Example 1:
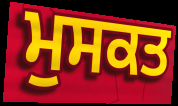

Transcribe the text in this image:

ਮੁਸਕਤ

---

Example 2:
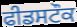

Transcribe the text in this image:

ਫੀਡਸਟੌਕ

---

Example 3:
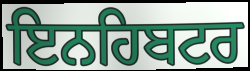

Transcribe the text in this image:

ਇਨਹਿਬਟਰ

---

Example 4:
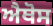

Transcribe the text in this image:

ਐਥੋਸ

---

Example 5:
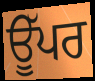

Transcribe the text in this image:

ਊੱਪਰ